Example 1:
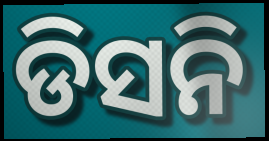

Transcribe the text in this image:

ଡିସନି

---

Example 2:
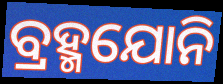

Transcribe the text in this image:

ବ୍ରହ୍ମଯୋନି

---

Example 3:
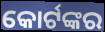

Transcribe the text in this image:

କୋର୍ଟଙ୍କର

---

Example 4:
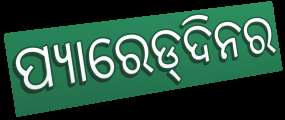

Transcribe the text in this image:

ପ୍ୟାରେଡ୍‌ଦିନର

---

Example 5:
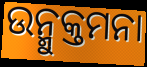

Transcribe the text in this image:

ଉନ୍ମୁକ୍ତମନା